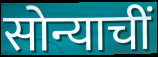
सोन्याचीं